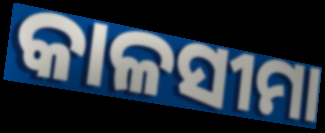
କାଳସୀମା